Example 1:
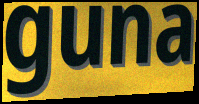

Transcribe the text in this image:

guna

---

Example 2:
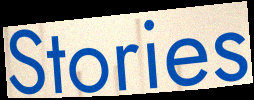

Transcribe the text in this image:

Stories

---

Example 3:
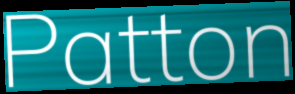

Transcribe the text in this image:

Patton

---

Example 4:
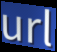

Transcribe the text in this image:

url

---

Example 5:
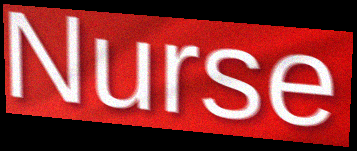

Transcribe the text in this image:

Nurse